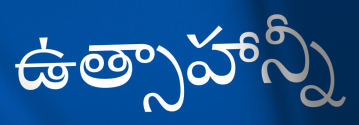
ఉత్సాహాన్నీ